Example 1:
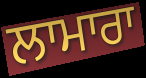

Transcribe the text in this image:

ਲਾਮਾਰਾ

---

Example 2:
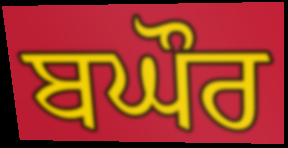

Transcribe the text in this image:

ਬਘੌਰ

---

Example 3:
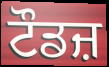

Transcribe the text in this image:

ਟੌਡਜ਼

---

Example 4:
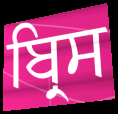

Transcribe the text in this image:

ਬ੍ਰਿਸ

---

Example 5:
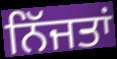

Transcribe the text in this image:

ਨਿੱਜਤਾਂ